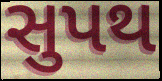
સુપથ